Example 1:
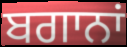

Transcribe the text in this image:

ਬਗਾਨਾਂ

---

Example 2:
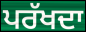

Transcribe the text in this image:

ਪਰੱਖਦਾ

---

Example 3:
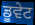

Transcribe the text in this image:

ਡੂਵੇਟ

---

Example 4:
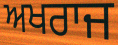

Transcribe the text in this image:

ਅਖਰਾਜ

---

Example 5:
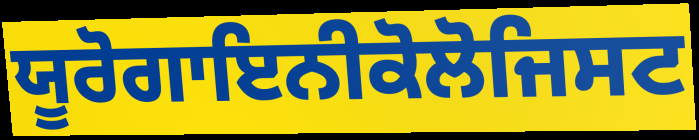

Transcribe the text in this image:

ਯੂਰੋਗਾਇਨੀਕੋਲੋਜਿਸਟ